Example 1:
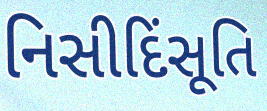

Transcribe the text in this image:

નિસીદિંસૂતિ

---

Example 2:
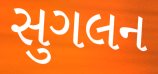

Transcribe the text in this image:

સુગલન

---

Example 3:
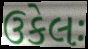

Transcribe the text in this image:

ઉકેલઃ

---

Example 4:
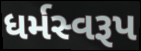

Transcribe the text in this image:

ધર્મસ્વરૂપ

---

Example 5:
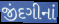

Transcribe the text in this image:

જીંદગીનાં